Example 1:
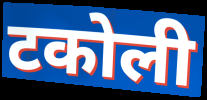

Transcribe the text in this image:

टकोली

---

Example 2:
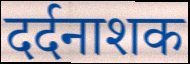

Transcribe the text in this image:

दर्दनाशक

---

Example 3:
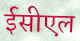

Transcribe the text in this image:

ईसीएल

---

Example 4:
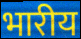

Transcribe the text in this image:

भारीय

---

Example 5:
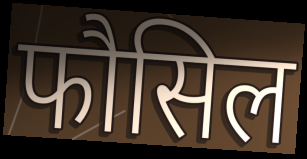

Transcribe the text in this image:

फौसिल